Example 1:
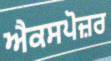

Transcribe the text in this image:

ਐਕਸਪੋਜ਼ਰ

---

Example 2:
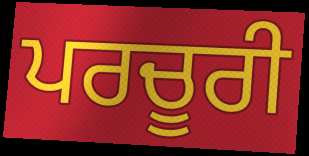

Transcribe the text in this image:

ਪਰਚੂਰੀ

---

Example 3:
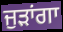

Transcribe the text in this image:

ਜੁੜਾਂਗਾ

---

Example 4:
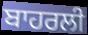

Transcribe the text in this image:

ਬਾਹਰਲੀ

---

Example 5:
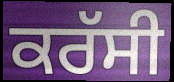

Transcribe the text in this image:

ਕਰੱਸੀ